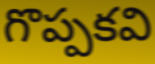
గొప్పకవి